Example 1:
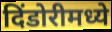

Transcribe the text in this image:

दिंडोरीमध्ये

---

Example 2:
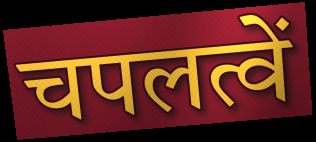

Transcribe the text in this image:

चपलत्वें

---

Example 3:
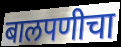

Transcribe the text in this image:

बालपणीचा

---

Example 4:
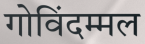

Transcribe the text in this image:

गोविंदम्मल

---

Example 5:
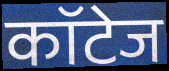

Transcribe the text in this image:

कॉटेज